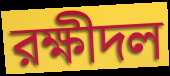
রক্ষীদল